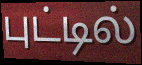
புட்டில்